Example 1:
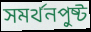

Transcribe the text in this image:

সমর্থনপুষ্ট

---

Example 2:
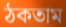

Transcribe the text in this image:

ঠকতাম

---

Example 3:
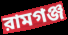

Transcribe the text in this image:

রামগঞ্জ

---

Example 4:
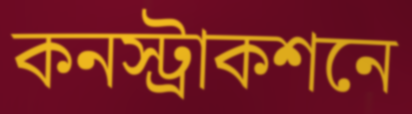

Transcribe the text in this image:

কনস্ট্রাকশনে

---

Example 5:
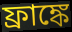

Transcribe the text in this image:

ফ্রাঙ্কে